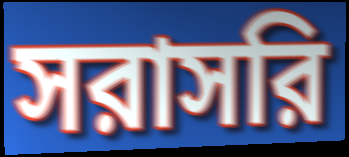
সরাসরি